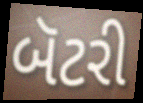
બૅટરી